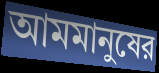
আমমানুষের